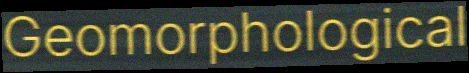
Geomorphological